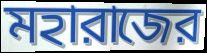
মহারাজের